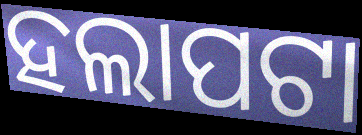
ହଲାପଟା